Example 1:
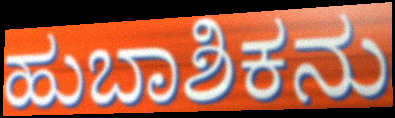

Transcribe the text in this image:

ಹುಬಾಶಿಕನು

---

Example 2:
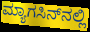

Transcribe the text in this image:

ಮ್ಯಾಗಸಿನ್‍ನಲ್ಲಿ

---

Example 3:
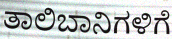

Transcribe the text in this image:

ತಾಲಿಬಾನಿಗಳಿಗೆ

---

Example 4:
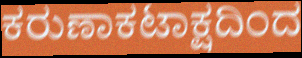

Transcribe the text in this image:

ಕರುಣಾಕಟಾಕ್ಷದಿಂದ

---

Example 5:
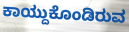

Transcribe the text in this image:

ಕಾಯ್ದುಕೊಂಡಿರುವ